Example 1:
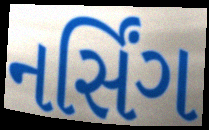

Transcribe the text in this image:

નર્સિંગ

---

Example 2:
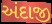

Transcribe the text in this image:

અંદાજી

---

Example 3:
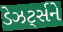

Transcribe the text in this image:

ડેઝર્ટ્સને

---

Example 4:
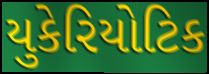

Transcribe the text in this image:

યુકેરિયોટિક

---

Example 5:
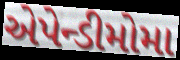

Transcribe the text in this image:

એપેન્ડીમોમા